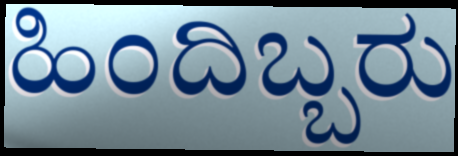
ಹಿಂದಿಬ್ಬರು